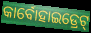
କାର୍ବୋହାଇଡ୍ରେଟ୍